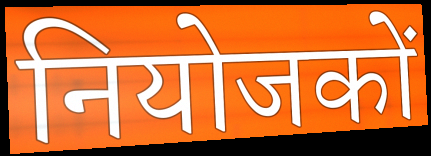
नियोजकों